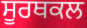
ਸੂਰਥਕਲ